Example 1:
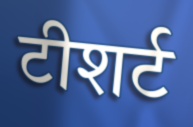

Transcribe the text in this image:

टीशर्ट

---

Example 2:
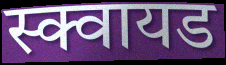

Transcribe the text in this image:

स्क्वायड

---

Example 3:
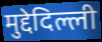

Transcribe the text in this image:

मुद्देदिल्ली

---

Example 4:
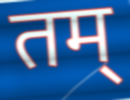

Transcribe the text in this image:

तम्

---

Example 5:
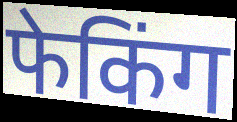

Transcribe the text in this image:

फेकिंग